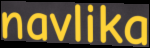
navlika